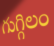
గుగ్గిలం